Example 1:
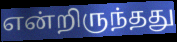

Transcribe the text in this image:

என்றிருந்தது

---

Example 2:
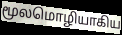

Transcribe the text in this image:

மூலமொழியாகிய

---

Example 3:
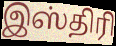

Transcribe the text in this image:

இஸ்திரி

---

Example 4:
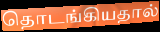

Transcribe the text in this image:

தொடங்கியதால்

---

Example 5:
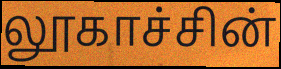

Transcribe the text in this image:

லூகாச்சின்